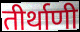
तीर्थाणी